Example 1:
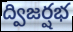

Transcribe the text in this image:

ద్విజర్షభ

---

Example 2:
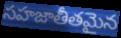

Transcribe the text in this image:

సహజాతీతమైన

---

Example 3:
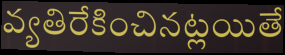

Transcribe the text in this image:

వ్యతిరేకించినట్లయితే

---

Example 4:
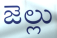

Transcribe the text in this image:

జెల్లు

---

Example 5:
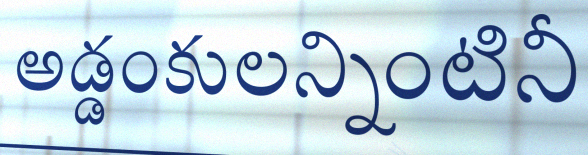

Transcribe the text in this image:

అడ్డంకులన్నింటినీ